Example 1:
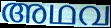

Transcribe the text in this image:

അഥവ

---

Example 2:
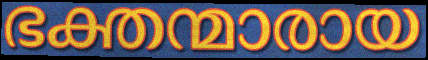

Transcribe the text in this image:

ഭക്തന്മാരായ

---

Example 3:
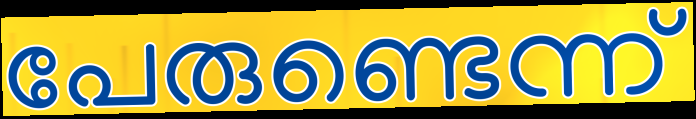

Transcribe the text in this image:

പേരുണ്ടെന്ന്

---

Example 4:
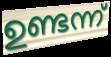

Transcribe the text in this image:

ഉണ്ടന്ന്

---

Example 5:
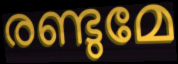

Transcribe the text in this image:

രണ്ടുമേ